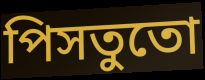
পিসতুতো